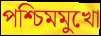
পশ্চিমমুখো